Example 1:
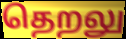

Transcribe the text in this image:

தெறலு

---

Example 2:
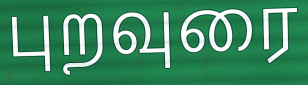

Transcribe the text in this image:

புறவுரை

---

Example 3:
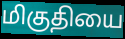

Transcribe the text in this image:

மிகுதியை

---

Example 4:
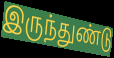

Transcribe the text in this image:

இருந்துண்டு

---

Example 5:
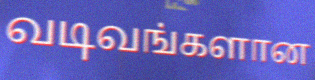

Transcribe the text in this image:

வடிவங்களான